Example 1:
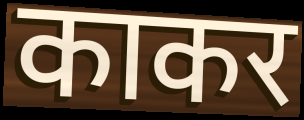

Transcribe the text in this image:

काकर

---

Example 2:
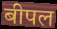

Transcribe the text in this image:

बीपल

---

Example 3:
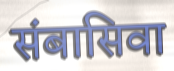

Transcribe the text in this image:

संबासिवा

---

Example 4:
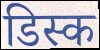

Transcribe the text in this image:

डिस्क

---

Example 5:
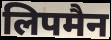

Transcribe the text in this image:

लिपमैन